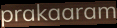
prakaaram